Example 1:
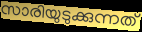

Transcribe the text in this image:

സാരിയുടുക്കുന്നത്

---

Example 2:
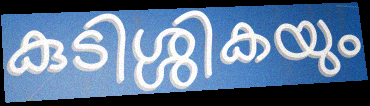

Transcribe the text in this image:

കുടിശ്ശികയും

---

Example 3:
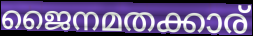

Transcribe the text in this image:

ജൈനമതക്കാര്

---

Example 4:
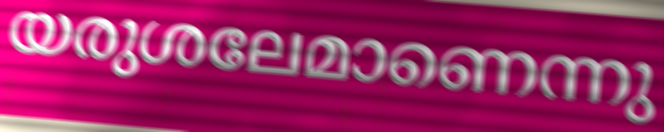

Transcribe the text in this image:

യരുശലേമാണെന്നു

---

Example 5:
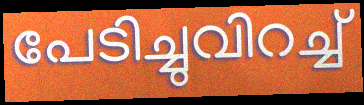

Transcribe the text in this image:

പേടിച്ചുവിറച്ച്